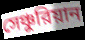
সেঞ্চুরিয়ান